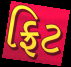
ફ્રિટ